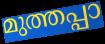
മുത്തപ്പാ